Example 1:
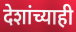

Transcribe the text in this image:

देशांच्याही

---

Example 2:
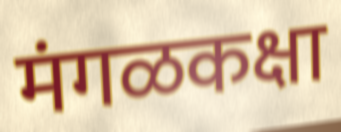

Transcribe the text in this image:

मंगळकक्षा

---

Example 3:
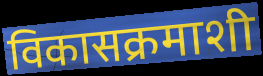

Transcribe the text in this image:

विकासक्रमाशी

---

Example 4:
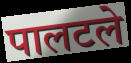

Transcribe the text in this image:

पालटले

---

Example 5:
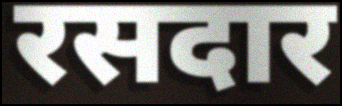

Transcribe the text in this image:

रसदार